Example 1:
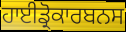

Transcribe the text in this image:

ਹਾਈਡ੍ਰੋਕਾਰਬਨਸ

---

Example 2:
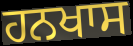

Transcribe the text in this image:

ਹਨਖਾਸ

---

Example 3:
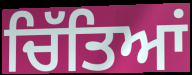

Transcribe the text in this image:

ਚਿੱਤਿਆਂ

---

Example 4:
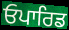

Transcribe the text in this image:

ਓਪਾਰਿਡ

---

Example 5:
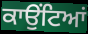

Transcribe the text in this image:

ਕਾਉਂਟਿਆਂ